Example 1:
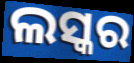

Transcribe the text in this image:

ଲସ୍କର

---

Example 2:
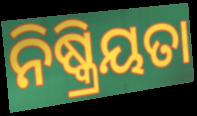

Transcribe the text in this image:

ନିଷ୍କ୍ରିୟତା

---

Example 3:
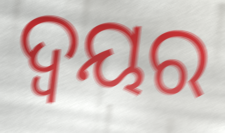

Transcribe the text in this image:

ଦ୍ବୟର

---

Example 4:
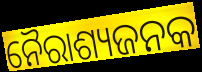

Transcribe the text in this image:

ନୈରାଶ୍ୟଜନକ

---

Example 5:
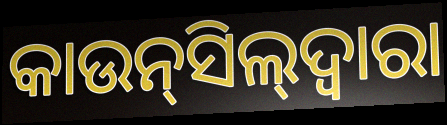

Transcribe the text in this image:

କାଉନ୍‌ସିଲ୍‌ଦ୍ବାରା